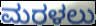
ಮರಳಲು